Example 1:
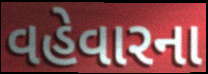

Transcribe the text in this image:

વહેવારના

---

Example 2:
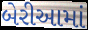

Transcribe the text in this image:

બેરીઆમાં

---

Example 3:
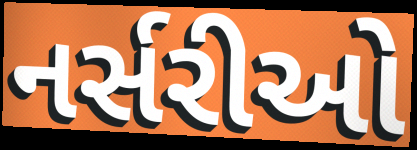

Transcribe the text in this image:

નર્સરીઓ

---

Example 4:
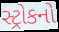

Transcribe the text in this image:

સ્ટ્રોકનો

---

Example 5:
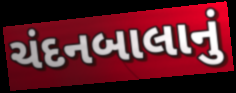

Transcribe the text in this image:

ચંદનબાલાનું